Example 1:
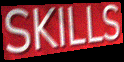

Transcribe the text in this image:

SKILLS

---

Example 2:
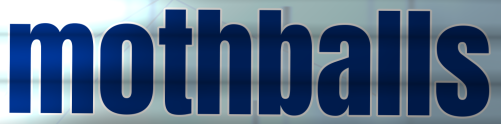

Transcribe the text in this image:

mothballs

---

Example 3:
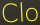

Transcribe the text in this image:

Clo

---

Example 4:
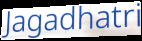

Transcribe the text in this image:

Jagadhatri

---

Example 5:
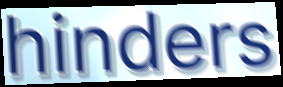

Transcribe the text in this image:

hinders